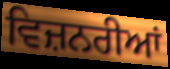
ਵਿਜ਼ਨਰੀਆਂ